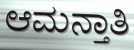
ಆಮನ್ತಾತಿ